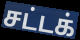
சட்டக்